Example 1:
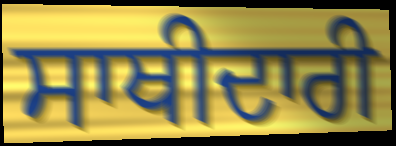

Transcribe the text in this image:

ਸਾਥੀਦਾਰੀ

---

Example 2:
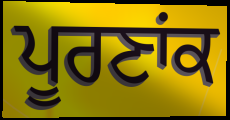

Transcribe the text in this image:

ਪੂਰਣਾਂਕ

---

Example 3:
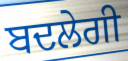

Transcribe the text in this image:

ਬਦਲੇਗੀ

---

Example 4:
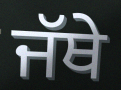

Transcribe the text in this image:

ਜੱਥੇ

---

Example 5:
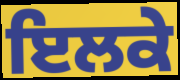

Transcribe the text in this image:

ਇਲਕੇ